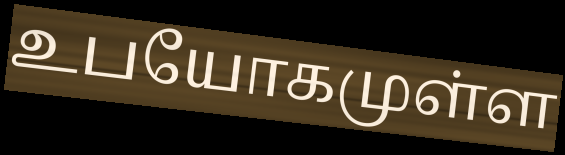
உபயோகமுள்ள